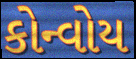
કોન્વોય